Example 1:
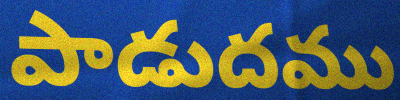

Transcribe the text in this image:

పాడుదము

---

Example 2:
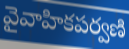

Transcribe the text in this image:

వైవాహికపర్వణి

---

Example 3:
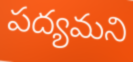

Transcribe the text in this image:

పద్యమని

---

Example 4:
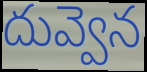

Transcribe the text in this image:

దువ్వెన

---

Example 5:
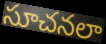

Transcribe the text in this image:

సూచనలా